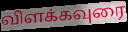
விளக்கவுரை